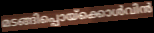
മടങ്ങിപ്പൊയ്ക്കൊൾവിൻ